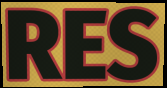
RES